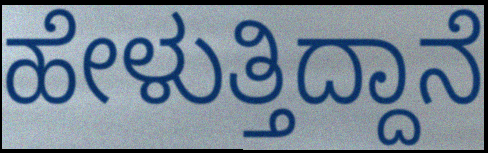
ಹೇಳುತ್ತಿದ್ದಾನೆ